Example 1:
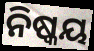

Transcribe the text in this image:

ନିଷ୍କୟ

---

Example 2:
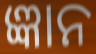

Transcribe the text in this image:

ଜ୍ଞାନ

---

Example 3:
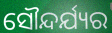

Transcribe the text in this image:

ସୌନ୍ଦର୍ଯ୍ୟର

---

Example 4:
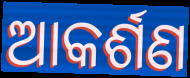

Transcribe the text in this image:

ଆକର୍ଶଣ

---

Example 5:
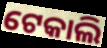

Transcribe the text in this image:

ଟେକାଲି